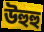
উহুহু